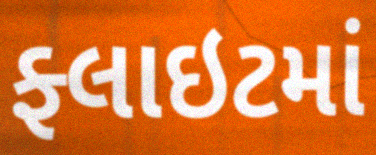
ફ્લાઇટમાં